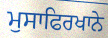
ਮੁਸਾਫਿਰਖਾਨੇ